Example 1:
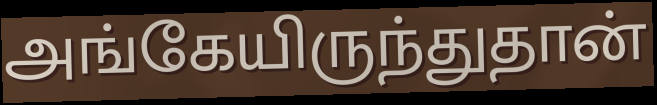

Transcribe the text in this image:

அங்கேயிருந்துதான்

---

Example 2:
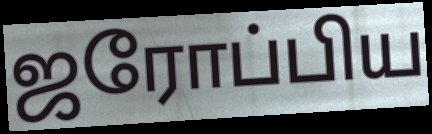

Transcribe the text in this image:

ஜரோப்பிய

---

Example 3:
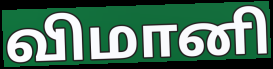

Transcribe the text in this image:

விமானி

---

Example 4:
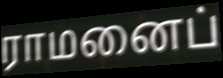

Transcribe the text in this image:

ராமனைப்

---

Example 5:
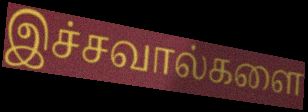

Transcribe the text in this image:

இச்சவால்களை